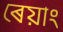
ৰেয়াং